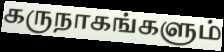
கருநாகங்களும்